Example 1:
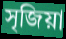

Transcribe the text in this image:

সৃজিয়া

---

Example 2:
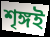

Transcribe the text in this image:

শৃঙ্গই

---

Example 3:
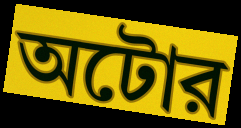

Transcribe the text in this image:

অটোর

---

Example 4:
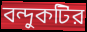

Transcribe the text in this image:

বন্দুকটির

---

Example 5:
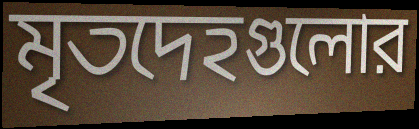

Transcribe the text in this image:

মৃতদেহগুলোর